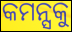
କମନ୍ସକୁ